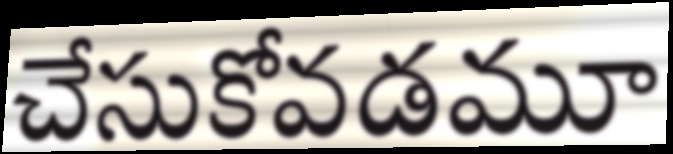
చేసుకోవడమూ